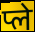
प्ले